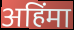
अहिंमा